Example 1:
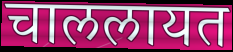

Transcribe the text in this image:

चाललायत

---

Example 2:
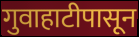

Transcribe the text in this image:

गुवाहाटीपासून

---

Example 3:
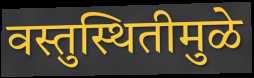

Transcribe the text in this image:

वस्तुस्थितीमुळे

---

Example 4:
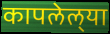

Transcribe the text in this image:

कापलेल्या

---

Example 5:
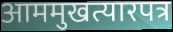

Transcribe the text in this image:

आममुखत्यारपत्र